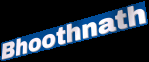
Bhoothnath